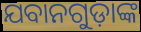
ଯବାନଗୁଡ଼ାଙ୍କ